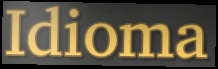
Idioma